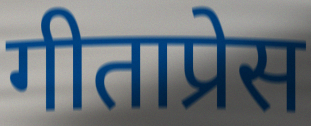
गीताप्रेस